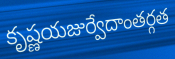
కృష్ణయజుర్వేదాంతర్గత